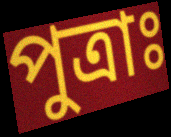
পুত্রাঃ